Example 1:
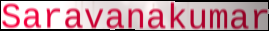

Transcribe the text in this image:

Saravanakumar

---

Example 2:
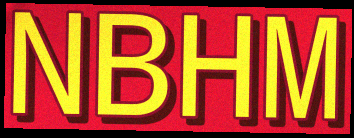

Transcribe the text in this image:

NBHM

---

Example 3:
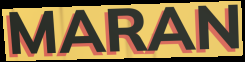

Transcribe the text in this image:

MARAN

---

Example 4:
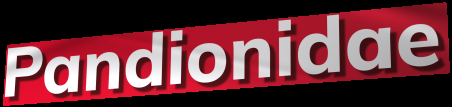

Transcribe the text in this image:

Pandionidae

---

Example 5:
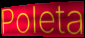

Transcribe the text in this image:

Poleta